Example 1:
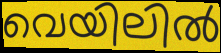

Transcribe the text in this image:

വെയിലിൽ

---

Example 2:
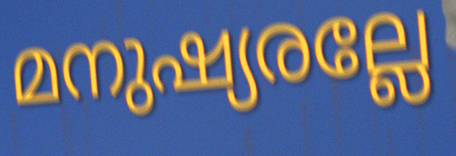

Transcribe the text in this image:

മനുഷ്യരല്ലേ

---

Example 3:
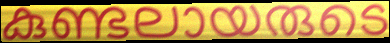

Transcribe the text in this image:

കുണ്ടലായരുടെ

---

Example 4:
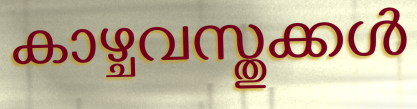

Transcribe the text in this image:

കാഴ്ചവസ്തുക്കൾ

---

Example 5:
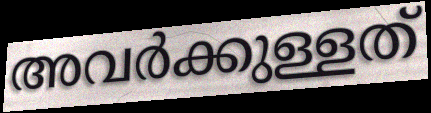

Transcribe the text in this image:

അവർക്കുള്ളത്